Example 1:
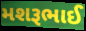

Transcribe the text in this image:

મશરૂભાઈ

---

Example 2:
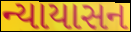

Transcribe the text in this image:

ન્યાયાસન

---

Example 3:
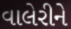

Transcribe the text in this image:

વાલેરીને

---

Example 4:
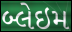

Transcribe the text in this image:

બ્લેઇમ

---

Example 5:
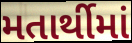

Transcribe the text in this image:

મતાર્થીમાં